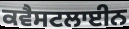
ਕਵੈਸਟਲਾਈਨ